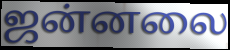
ஜன்னலை